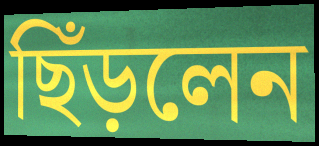
ছিঁড়লেন